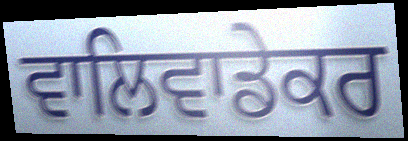
ਵਾਲਿਵਾਡੇਕਰ